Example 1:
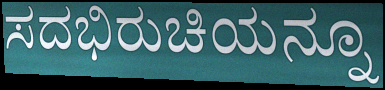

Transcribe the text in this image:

ಸದಭಿರುಚಿಯನ್ನೂ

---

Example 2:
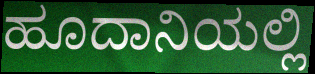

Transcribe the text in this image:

ಹೂದಾನಿಯಲ್ಲಿ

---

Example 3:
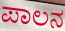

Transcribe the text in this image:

ಪಾಲನ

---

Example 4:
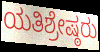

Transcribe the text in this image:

ಯತಿಶ್ರೇಷ್ಠರು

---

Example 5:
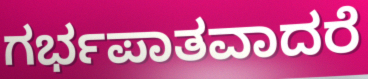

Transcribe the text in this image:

ಗರ್ಭಪಾತವಾದರೆ